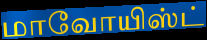
மாவோயிஸ்ட்